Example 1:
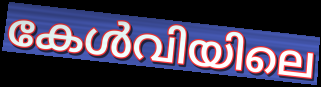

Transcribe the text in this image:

കേൾവിയിലെ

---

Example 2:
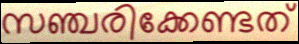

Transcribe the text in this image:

സഞ്ചരിക്കേണ്ടത്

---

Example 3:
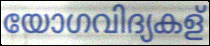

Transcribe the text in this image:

യോഗവിദ്യകള്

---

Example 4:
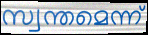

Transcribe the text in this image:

സ്വന്തമെന്ന്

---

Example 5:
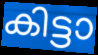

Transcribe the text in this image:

കിട്ടാ